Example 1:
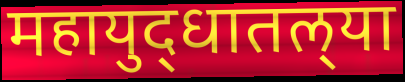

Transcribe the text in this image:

महायुद्धातल्या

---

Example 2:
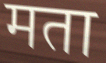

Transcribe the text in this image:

मता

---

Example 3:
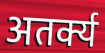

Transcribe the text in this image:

अतर्क्य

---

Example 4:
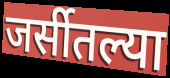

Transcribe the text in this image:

जर्सीतल्या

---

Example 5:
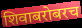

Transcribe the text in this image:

शिवाबरोबरच